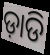
ଡ଼ାଡି